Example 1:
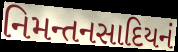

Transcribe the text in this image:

નિમન્તનસાદિયનં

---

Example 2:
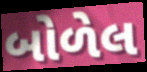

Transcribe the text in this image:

બોળેલ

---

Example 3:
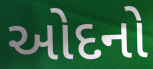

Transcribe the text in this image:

ઓદનો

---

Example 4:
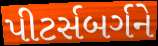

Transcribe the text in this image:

પીટર્સબર્ગને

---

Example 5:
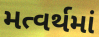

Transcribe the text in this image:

મત્વર્થમાં